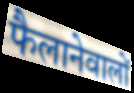
फैलानेवालों